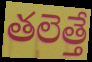
తలెత్తే